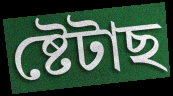
ষ্টেটাছ